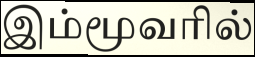
இம்மூவரில்